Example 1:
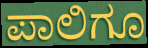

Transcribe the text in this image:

ಪಾಲಿಗೂ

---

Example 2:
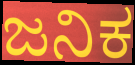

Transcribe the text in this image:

ಜನಿಕ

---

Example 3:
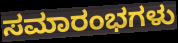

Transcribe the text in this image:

ಸಮಾರಂಭಗಳು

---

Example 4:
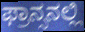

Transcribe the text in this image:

ಫ್ರಾನ್ಸನಲ್ಲಿ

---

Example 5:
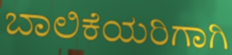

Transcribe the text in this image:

ಬಾಲಿಕೆಯರಿಗಾಗಿ